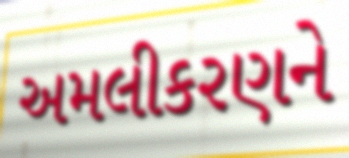
અમલીકરણને